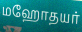
மஹோதயர்